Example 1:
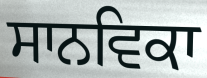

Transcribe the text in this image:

ਸਾਨਵਿਕਾ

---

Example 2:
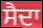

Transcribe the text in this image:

ਸੈਦਾ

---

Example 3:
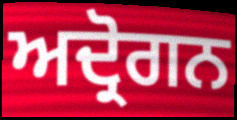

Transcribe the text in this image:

ਅਦ੍ਰੋਗਨ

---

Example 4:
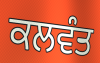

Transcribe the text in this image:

ਕਲਵੰਤ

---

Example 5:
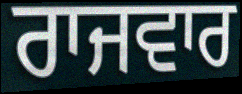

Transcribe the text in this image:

ਰਾਜਵਾਰ